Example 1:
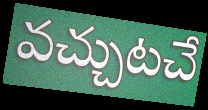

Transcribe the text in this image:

వచ్చుటచే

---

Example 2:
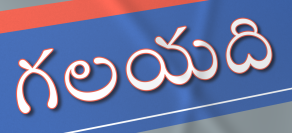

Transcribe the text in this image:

గలయది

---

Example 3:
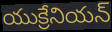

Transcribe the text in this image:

యుక్రేనియన్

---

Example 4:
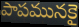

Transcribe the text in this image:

పాపమునకై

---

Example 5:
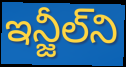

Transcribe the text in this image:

ఇన్జీల్‌ని